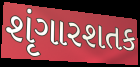
શૃંગારશતક